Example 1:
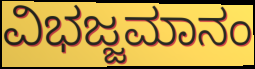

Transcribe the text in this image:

ವಿಭಜ್ಜಮಾನಂ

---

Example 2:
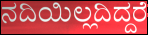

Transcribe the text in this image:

ನದಿಯಿಲ್ಲದಿದ್ದರೆ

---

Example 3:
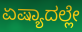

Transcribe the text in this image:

ಏಷ್ಯಾದಲ್ಲೇ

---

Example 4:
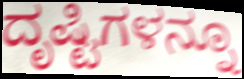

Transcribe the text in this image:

ದೃಷ್ಟಿಗಳನ್ನೂ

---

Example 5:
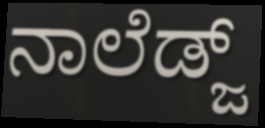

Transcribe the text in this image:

ನಾಲೆಡ್ಜ್